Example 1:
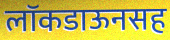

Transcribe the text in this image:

लॉकडाऊनसह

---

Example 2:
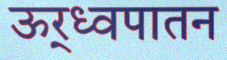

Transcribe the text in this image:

ऊर्ध्वपातन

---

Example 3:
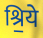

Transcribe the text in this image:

श्रि॒ये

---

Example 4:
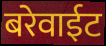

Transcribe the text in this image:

बरेवाईट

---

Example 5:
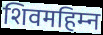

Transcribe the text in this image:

शिवमहिम्न